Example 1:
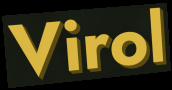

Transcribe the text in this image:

Virol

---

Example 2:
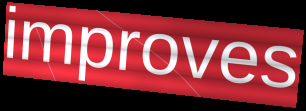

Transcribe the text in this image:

improves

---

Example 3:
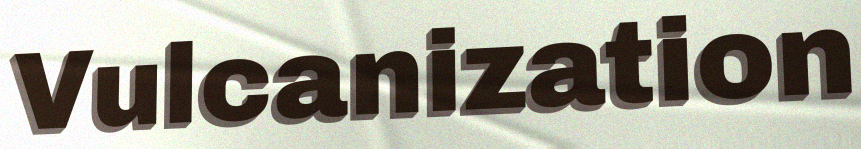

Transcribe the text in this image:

Vulcanization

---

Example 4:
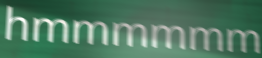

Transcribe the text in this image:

hmmmmmm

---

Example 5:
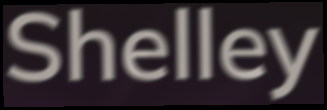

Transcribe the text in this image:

Shelley